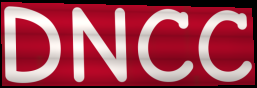
DNCC